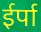
ईर्पा